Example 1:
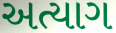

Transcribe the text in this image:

અત્યાગ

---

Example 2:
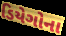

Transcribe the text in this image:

ડિયેગોના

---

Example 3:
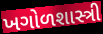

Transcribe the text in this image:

ખગોળશાસ્ત્રી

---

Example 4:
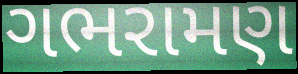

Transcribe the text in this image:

ગભરામણ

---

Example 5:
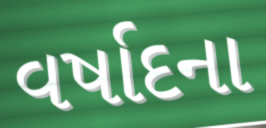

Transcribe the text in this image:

વર્ષાદના